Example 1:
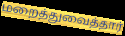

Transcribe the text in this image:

மறைத்துவைத்தார்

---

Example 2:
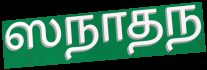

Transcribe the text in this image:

ஸநாதந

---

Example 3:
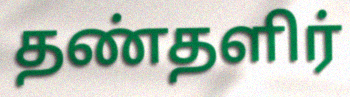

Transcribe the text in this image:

தண்தளிர்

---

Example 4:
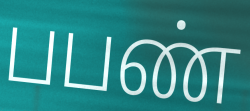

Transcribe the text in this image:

பபண்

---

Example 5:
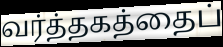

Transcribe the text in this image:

வர்த்தகத்தைப்